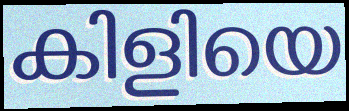
കിളിയെ